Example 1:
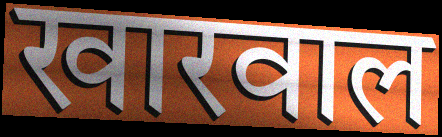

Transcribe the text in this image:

खारवाल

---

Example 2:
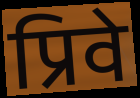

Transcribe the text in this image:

प्रिवे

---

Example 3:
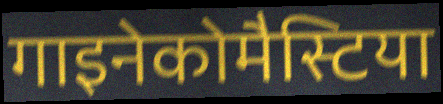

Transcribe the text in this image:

गाइनेकोमैस्टिया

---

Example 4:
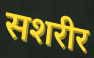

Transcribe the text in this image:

सशरीर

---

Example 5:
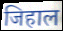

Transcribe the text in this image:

जिहाल